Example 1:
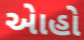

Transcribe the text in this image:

એાહો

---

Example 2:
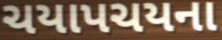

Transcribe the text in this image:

ચયાપચયના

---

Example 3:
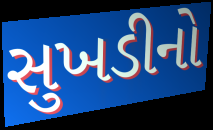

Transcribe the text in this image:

સુખડીનો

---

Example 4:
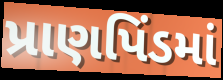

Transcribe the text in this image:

પ્રાણપિંડમાં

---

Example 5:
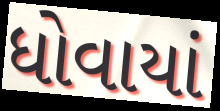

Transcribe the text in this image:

ધોવાયાં